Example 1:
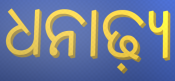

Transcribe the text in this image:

ଧନାଢ଼୍ୟ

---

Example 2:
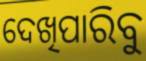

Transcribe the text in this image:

ଦେଖିପାରିବୁ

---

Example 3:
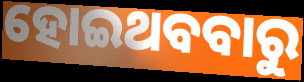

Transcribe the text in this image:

ହୋଇଥବବାରୁ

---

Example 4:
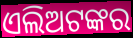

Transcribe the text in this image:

ଏଲିଅଟଙ୍କର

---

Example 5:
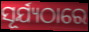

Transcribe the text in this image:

ସୂର୍ଯ୍ୟଠାରେ